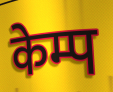
केम्प